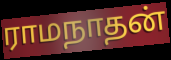
ராமநாதன்